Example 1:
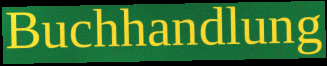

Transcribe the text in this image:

Buchhandlung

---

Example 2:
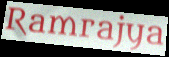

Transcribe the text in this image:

Ramrajya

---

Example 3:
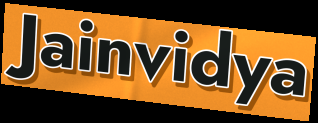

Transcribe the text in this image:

Jainvidya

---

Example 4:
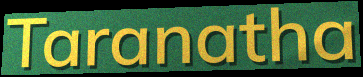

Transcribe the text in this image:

Taranatha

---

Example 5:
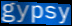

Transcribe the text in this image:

gypsy